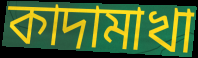
কাদামাখা